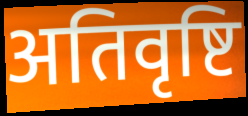
अतिवृष्टि